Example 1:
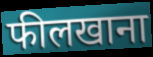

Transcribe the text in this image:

फीलखाना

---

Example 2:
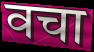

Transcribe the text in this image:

वचा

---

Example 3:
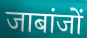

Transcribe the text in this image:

जाबांजों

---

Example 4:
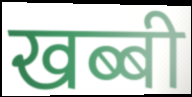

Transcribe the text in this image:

खब्बी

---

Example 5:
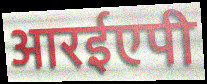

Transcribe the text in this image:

आरईएपी